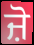
ਜ਼ੋ